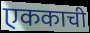
एककाची